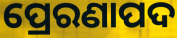
ପ୍ରେରଣାପଦ